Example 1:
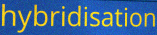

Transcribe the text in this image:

hybridisation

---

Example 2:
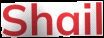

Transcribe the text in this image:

Shail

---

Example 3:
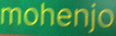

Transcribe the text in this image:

mohenjo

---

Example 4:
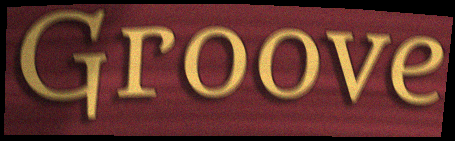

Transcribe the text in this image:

Groove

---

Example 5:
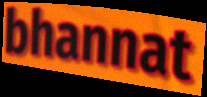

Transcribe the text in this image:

bhannat